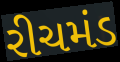
રીચમંડ